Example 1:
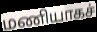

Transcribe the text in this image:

மணியாகச்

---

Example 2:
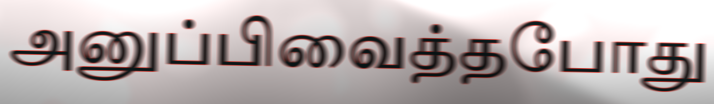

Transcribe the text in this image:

அனுப்பிவைத்தபோது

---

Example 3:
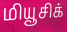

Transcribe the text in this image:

மியூசிக்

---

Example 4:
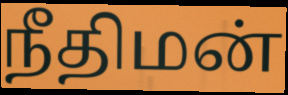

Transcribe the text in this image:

நீதிமன்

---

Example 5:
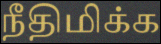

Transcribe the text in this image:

நீதிமிக்க